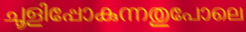
ചൂളിപ്പോകുന്നതുപോലെ